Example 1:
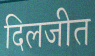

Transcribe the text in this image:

दिलजीत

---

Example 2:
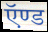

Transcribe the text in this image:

ऍण्ड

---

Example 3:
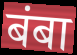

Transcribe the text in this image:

बंबा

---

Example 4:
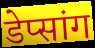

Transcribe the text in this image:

डेप्सांग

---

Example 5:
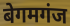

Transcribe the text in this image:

बेगमगंज